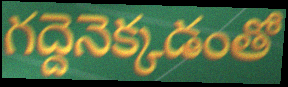
గద్దెనెక్కడంతో